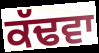
ਕੱਢਵਾ